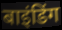
बाइंडिंग